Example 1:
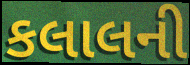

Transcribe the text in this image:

કલાલની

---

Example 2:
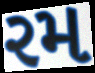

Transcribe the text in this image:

રમ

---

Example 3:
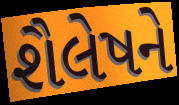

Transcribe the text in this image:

શૈલેષને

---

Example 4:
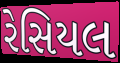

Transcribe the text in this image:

રેસિયલ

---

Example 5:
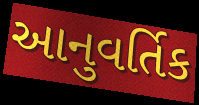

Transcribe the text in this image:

આનુવર્તિક